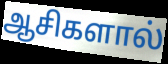
ஆசிகளால்